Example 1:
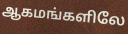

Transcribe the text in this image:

ஆகமங்களிலே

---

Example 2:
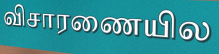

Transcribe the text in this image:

விசாரணையில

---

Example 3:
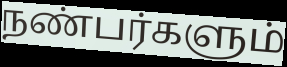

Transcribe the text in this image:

நண்பர்களும்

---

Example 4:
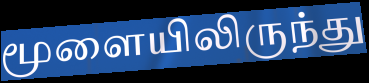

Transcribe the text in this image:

மூளையிலிருந்து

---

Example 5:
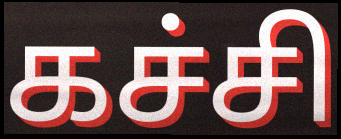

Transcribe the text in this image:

கச்சி